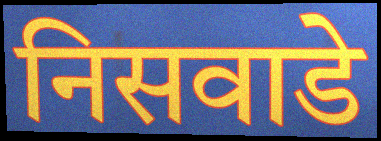
निसवाडे